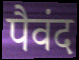
पैवंद